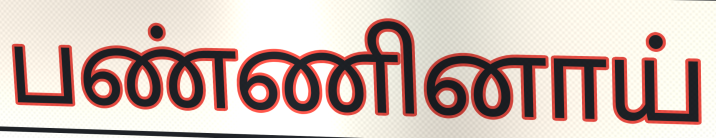
பண்ணினாய்